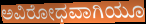
ಅವಿರೋಧವಾಗಿಯೂ